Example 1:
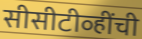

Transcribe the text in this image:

सीसीटीव्हींची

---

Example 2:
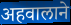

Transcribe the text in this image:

अहवालाने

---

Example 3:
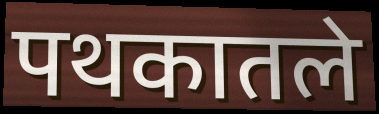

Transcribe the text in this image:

पथकातले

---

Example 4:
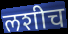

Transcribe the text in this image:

लशीच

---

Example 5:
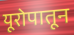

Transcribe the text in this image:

यूरोपातून